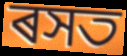
ৰসত